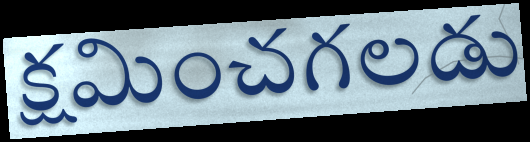
క్షమించగలడు